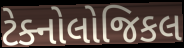
ટેક્નોલોજિકલ